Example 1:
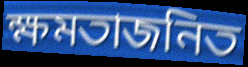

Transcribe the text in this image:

ক্ষমতাজনিত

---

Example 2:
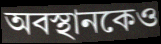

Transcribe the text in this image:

অবস্থানকেও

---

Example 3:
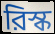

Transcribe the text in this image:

রিস্ক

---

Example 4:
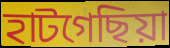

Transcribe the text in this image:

হাটগেছিয়া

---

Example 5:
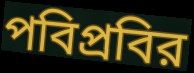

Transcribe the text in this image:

পবিপ্রবির